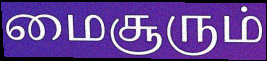
மைசூரும்